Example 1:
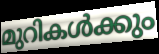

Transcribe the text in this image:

മുറികൾക്കും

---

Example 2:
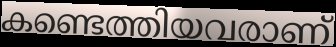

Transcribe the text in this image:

കണ്ടെത്തിയവരാണ്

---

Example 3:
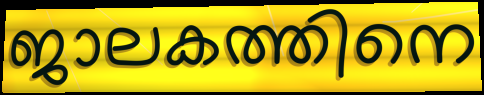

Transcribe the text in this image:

ജാലകത്തിനെ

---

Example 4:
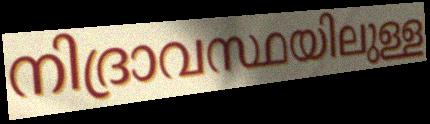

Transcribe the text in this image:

നിദ്രാവസ്ഥയിലുള്ള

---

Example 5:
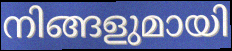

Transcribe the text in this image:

നിങ്ങളുമായി